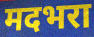
मदभरा